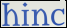
hinc